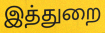
இத்துறை